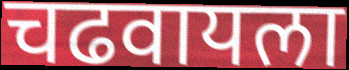
चढवायला